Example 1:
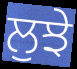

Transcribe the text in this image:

ਲੁਝੇ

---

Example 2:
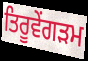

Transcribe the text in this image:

ਤਿਰੂਵੇਂਗੜਮ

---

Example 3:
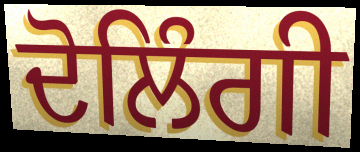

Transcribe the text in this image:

ਦੋਲਿੰਗੀ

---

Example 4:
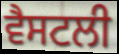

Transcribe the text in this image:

ਵੈਸਟਲੀ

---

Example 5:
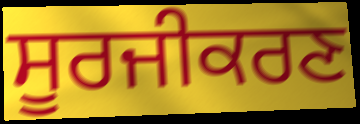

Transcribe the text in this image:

ਸੂਰਜੀਕਰਣ